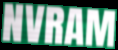
NVRAM